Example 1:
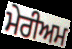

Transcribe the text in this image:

ਮੇਰੀਅਮ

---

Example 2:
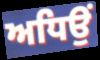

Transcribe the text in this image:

ਅਧਿਉਂ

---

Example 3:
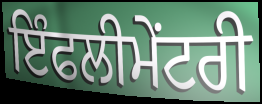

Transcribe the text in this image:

ਇੰਫਲੀਮੇਂਟਰੀ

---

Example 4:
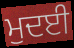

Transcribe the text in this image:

ਮੁਦਈ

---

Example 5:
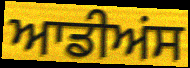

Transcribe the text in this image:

ਆਡੀਅਂਸ